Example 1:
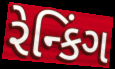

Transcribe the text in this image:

રેન્કિંગ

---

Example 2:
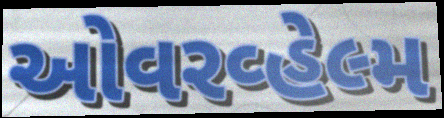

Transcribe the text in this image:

ઓવરવ્હેલ્મ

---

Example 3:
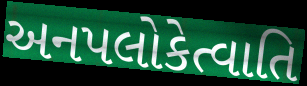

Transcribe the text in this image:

અનપલોકેત્વાતિ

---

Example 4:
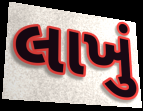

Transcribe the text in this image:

લાખું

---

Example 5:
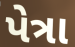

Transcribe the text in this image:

પેત્રા